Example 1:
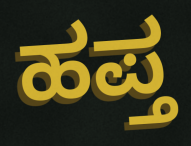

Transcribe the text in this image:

ಹಪ್ತ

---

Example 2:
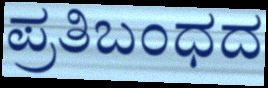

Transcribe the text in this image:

ಪ್ರತಿಬಂಧದ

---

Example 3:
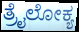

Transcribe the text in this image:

ತ್ರೈಲೋಕ್ಯ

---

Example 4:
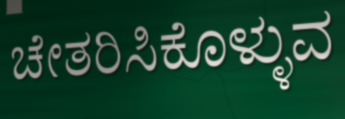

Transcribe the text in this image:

ಚೇತರಿಸಿಕೊಳ್ಳುವ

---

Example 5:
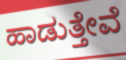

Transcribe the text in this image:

ಹಾಡುತ್ತೇವೆ